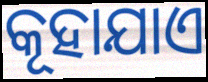
କୂହାଯାଏ